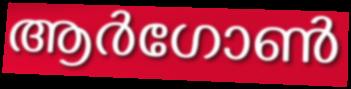
ആർഗോൺ